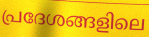
പ്രദേശങ്ങളിലെ